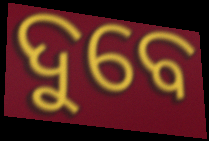
ଦୁବେ